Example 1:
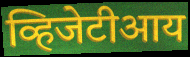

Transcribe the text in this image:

व्हिजेटीआय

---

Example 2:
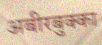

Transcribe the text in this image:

अबीरबुक्का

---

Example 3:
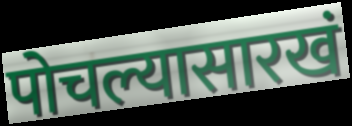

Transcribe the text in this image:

पोचल्यासारखं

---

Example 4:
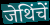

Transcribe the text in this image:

जेथिंचें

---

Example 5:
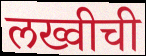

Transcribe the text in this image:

लख्वीची